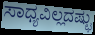
ಸಾಧ್ಯವಿಲ್ಲದಷ್ಟು